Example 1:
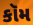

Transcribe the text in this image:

કૉમ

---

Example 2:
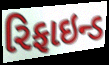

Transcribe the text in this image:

રિફાઇન્ડ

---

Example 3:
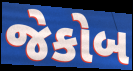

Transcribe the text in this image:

જેકોબ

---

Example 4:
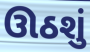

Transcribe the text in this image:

ઊઠશું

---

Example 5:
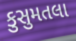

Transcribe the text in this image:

કુસુમતલા